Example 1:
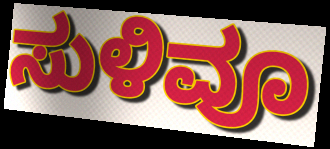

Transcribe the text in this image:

ಸುಳಿವೂ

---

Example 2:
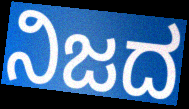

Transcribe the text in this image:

ನಿಜದ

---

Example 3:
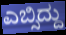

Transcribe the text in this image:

ಎಬ್ಸಿದ್ದು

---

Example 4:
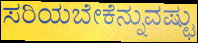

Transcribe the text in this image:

ಸರಿಯಬೇಕೆನ್ನುವಷ್ಟು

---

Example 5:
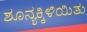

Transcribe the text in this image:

ಶೂನ್ಯಕ್ಕಿಳಿಯಿತು